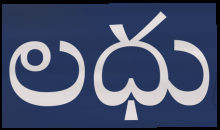
లధు